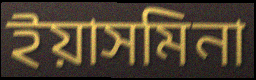
ইয়াসমিনা